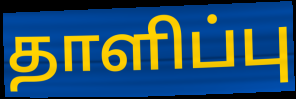
தாளிப்பு